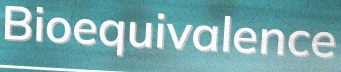
Bioequivalence